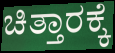
ಚಿತ್ತಾರಕ್ಕೆ